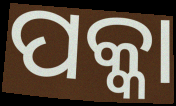
ପକ୍କା